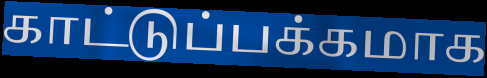
காட்டுப்பக்கமாக